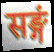
सङ्गं